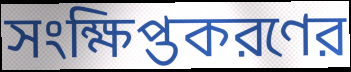
সংক্ষিপ্তকরণের